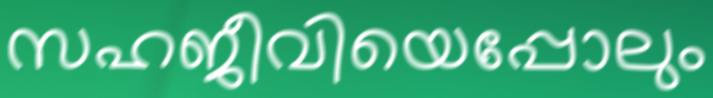
സഹജീവിയെപ്പോലും